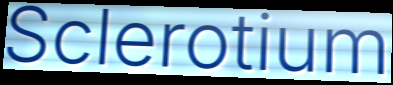
Sclerotium